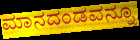
ಮಾನದಂಡವನ್ನೂ